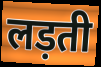
लड़ती